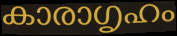
കാരാഗൃഹം